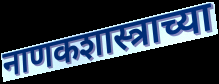
नाणकशास्त्राच्या